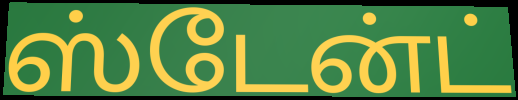
ஸ்டேன்ட்